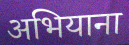
अभियाना